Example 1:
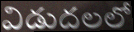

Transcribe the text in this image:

విడుదలలో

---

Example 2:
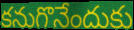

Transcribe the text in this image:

కనుగొనేందుకు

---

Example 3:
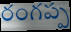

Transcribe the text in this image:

రంగప్ప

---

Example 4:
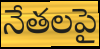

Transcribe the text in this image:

నేతలపై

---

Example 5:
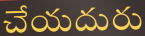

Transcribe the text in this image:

చేయదురు